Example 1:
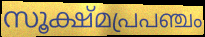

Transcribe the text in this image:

സൂക്ഷ്മപ്രപഞ്ചം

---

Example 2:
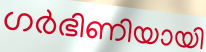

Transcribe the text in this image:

ഗർഭിണിയായി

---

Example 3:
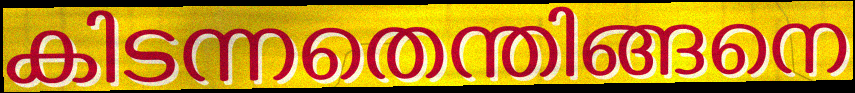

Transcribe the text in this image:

കിടന്നതെന്തിങ്ങനെ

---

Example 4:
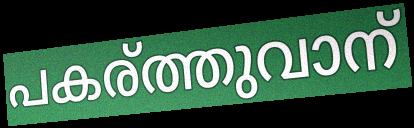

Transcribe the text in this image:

പകര്ത്തുവാന്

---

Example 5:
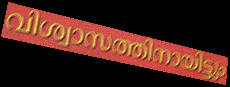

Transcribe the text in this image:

വിശ്വാസത്തിനായിട്ടും